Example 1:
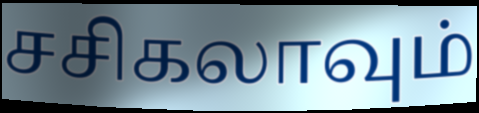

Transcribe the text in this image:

சசிகலாவும்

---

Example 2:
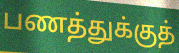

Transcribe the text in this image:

பணத்துக்குத்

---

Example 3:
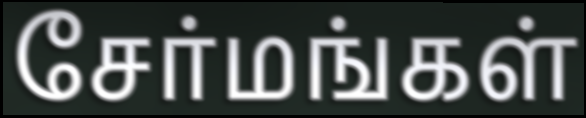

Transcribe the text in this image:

சேர்மங்கள்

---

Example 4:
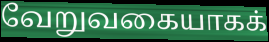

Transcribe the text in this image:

வேறுவகையாகக்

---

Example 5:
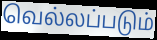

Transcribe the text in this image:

வெல்லப்படும்